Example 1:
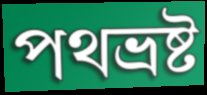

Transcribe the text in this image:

পথভ্ৰষ্ট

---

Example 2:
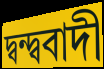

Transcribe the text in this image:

দ্বন্দ্ববাদী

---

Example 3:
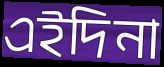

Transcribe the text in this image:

এইদিনা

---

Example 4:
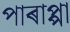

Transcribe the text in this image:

পাৰাপ্পা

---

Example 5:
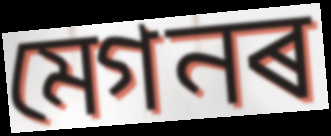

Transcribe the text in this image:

মেগনৰ